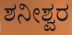
ಶನೀಶ್ವರ